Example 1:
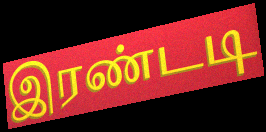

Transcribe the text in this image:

இரண்டடி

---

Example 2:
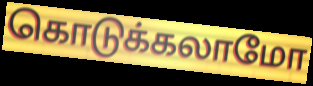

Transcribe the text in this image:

கொடுக்கலாமோ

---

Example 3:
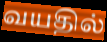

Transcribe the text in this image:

வயதில்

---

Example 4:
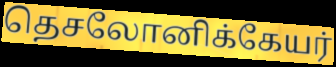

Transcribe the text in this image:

தெசலோனிக்கேயர்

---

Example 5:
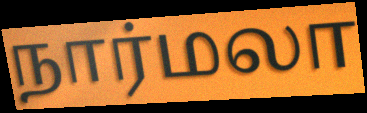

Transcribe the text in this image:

நார்மலா